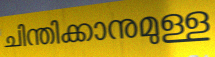
ചിന്തിക്കാനുമുള്ള